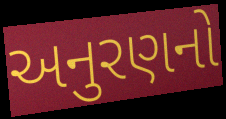
અનુરણનો